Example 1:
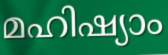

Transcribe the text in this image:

മഹിഷ്യാം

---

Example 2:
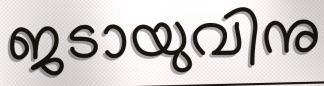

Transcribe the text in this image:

ജടായുവിനു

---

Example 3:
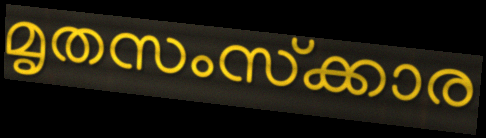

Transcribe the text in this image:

മൃതസംസ്‌ക്കാര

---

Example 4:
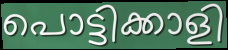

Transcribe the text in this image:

പൊട്ടിക്കാളി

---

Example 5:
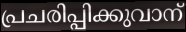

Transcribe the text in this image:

പ്രചരിപ്പിക്കുവാന്